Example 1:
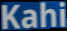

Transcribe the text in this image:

Kahi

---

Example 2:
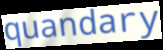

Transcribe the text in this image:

quandary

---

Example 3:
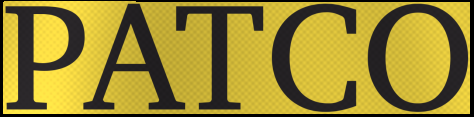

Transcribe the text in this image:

PATCO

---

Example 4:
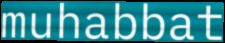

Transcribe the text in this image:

muhabbat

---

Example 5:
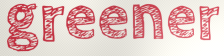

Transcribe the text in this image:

greener